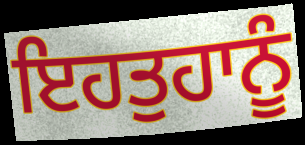
ਇਹਤੁਹਾਨੂੰ